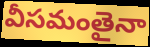
వీసమంతైనా